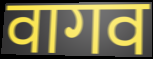
वागव